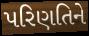
પરિણતિને